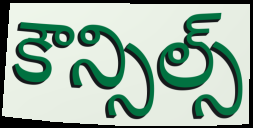
కౌన్సిల్స్